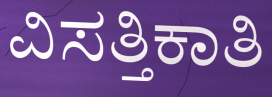
ವಿಸತ್ತಿಕಾತಿ